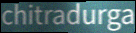
chitradurga